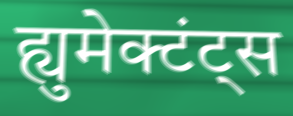
ह्युमेक्टंट्स